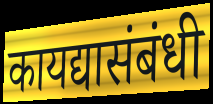
कायद्यासंबंधी